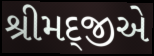
શ્રીમદ્જીએ